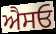
ਐਸਓ